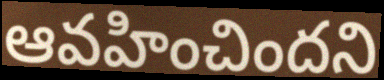
ఆవహించిందని